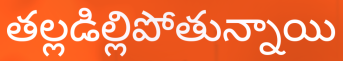
తల్లడిల్లిపోతున్నాయి